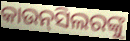
କାଉନ୍‌ସିଲରଙ୍କୁ